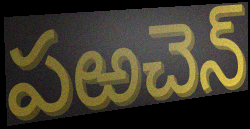
పఱచెన్